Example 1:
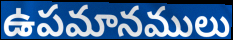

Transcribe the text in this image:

ఉపమానములు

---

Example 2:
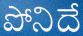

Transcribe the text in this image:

పోనిదే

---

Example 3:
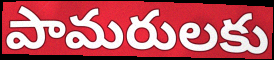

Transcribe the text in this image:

పామరులకు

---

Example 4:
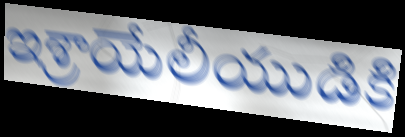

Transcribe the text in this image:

ఇశ్రాయేలీయుడికి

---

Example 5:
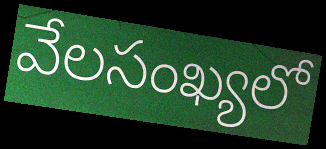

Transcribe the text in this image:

వేలసంఖ్యలో